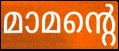
മാമന്റെ